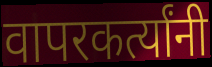
वापरकर्त्यांनी